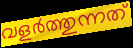
വളർത്തുന്നത്